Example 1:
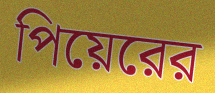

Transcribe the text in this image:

পিয়েরের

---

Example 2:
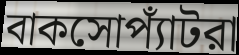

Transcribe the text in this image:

বাকসোপ্যাঁটরা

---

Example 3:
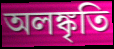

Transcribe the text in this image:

অলঙ্কৃতি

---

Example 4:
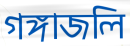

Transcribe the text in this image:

গঙ্গাজলি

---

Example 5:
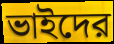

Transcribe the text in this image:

ভাইদের